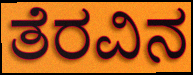
ತೆರವಿನ